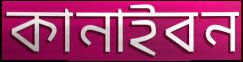
কানাইবন